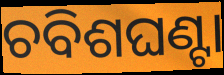
ଚବିଶଘଣ୍ଟା